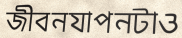
জীবনযাপনটাও